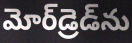
మోర్‌డ్రెడ్‌ను